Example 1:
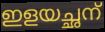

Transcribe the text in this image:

ഇളയച്ഛന്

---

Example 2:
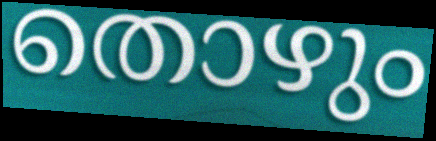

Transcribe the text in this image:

തൊഴും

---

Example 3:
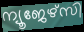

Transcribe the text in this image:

ന്യൂജേഴ്സി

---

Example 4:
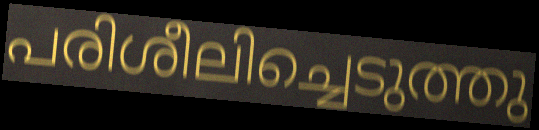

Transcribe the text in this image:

പരിശീലിച്ചെടുത്തു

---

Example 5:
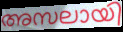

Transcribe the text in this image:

അസലായി